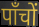
पाँचों